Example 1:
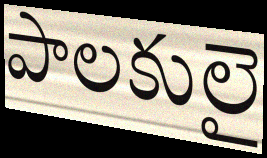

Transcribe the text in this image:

పాలకులై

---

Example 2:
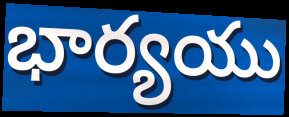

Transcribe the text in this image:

భార్యయు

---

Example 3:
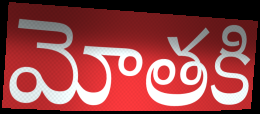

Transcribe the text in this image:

మోతకి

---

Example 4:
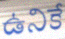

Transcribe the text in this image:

ఉనికే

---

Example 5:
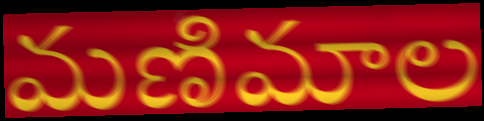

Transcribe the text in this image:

మణిమాల